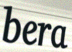
bera